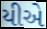
યીએ